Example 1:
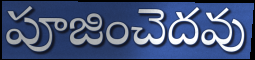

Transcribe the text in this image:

పూజించెదవు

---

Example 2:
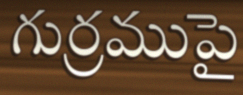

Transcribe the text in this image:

గుర్రముపై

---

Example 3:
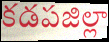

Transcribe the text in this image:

కడపజిల్లా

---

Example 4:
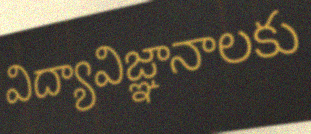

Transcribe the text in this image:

విద్యావిజ్ఞానాలకు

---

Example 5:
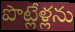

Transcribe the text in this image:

పొట్లేళ్లను